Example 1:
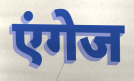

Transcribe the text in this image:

एंगेज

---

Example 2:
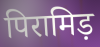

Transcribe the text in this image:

पिरामिड़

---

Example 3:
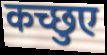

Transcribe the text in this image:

कच्छुए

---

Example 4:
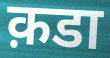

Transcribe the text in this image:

क़डा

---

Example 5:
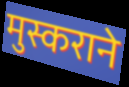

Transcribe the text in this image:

मुस्कराने